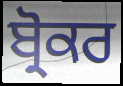
ਬ੍ਰੋਕਰ